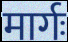
मार्गः